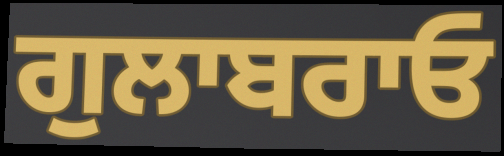
ਗੁਲਾਬਰਾਓ